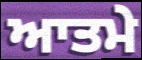
ਆਤਮੇ